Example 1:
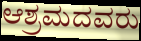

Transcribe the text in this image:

ಆಶ್ರಮದವರು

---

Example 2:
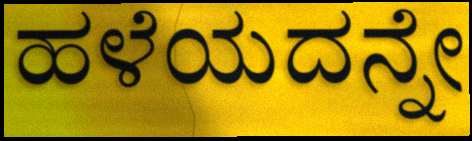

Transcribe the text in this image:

ಹಳೆಯದನ್ನೇ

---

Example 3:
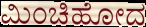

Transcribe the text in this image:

ಮಿಂಚಿಹೋದ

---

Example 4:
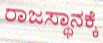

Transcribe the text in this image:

ರಾಜಸ್ಥಾನಕ್ಕೆ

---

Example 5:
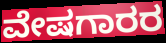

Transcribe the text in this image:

ವೇಷಗಾರರ